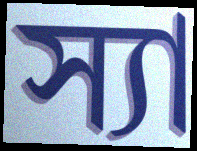
স্যা